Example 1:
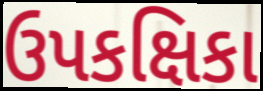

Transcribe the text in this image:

ઉપકક્ષિકા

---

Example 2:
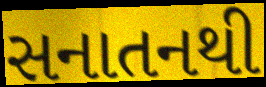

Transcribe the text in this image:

સનાતનથી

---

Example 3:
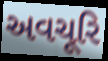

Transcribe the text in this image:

અવચૂરિ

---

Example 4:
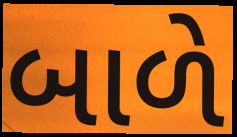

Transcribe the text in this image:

બાળે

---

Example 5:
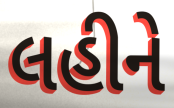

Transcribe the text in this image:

લહીને